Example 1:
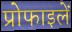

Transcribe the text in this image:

प्रोफाइलें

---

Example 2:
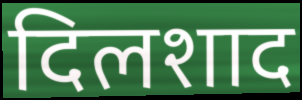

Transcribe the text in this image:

दिलशाद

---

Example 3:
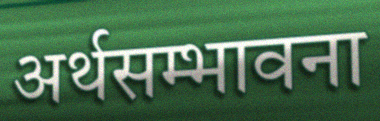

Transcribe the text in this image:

अर्थसम्भावना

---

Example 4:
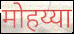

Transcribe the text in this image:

मोहय्या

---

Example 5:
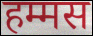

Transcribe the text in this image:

हम्मस